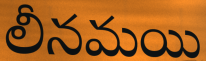
లీనమయి